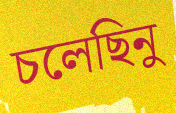
চলেছিনু